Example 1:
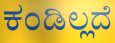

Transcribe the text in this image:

ಕಂಡಿಲ್ಲದೆ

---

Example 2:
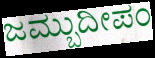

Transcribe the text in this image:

ಜಮ್ಬುದೀಪಂ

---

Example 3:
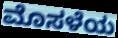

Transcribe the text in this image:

ಮೊಸಳೆಯ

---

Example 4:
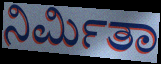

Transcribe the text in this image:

ನಿರ್ಮಿತಾ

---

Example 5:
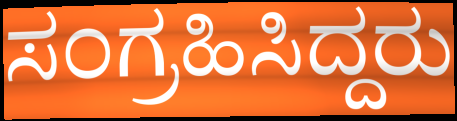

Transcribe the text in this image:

ಸಂಗ್ರಹಿಸಿದ್ದರು